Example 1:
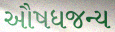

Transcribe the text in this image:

ઔષધજન્ય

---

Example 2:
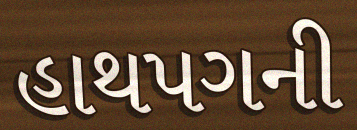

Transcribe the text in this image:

હાથપગની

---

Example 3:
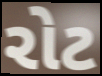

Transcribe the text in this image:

રોટ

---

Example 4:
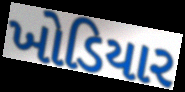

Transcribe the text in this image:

ખોડિયાર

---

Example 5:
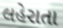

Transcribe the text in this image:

લહેરાતા